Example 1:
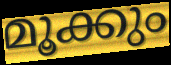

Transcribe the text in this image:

മൂക്കും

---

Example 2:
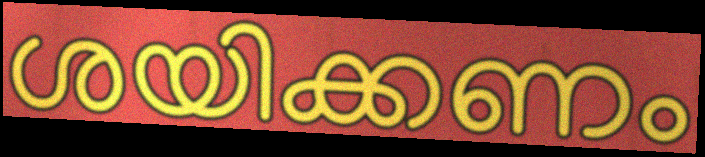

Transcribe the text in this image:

ശയിക്കണം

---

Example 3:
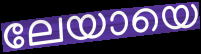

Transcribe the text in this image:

ലേയായെ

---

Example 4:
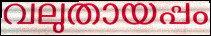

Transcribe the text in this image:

വലുതായപ്പം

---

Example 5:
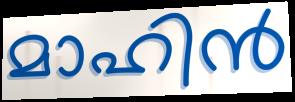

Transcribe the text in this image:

മാഹിൻ